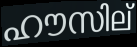
ഹൗസില്